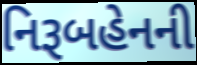
નિરૂબહેનની